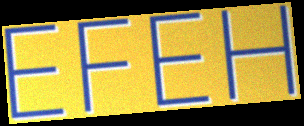
EFEH